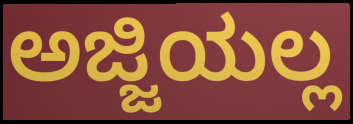
ಅಜ್ಜಿಯಲ್ಲ